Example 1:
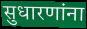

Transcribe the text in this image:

सुधारणांना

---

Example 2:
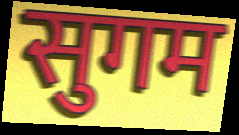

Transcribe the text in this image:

सुगम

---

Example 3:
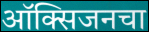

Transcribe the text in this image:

ऑक्सिजनचा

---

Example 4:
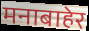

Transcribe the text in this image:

मनाबाहेर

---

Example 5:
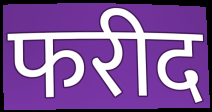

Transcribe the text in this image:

फरीद